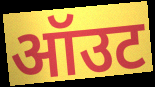
ऑउट